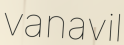
vanavil